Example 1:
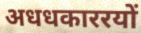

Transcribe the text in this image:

अधधकाररयों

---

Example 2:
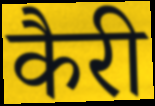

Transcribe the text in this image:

कैरी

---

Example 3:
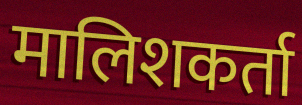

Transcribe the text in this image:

मालिशकर्ता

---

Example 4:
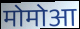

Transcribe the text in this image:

मोमोआ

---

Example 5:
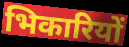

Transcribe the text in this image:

भिकारियों